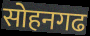
सोहनगढ